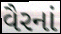
વૈરનાં